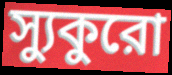
স্যুকুরো